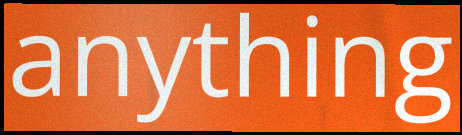
anything